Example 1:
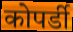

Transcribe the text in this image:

कोपर्डी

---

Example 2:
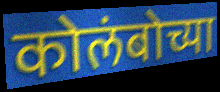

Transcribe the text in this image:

कोलंबोच्या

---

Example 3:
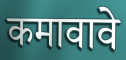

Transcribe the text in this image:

कमावावे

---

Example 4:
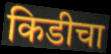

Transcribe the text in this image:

किडीचा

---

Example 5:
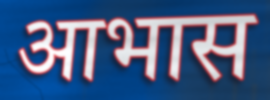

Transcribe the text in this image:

आभास